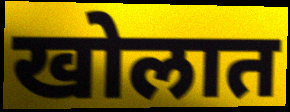
खोलात